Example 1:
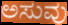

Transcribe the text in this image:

ಅಸುವು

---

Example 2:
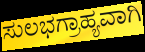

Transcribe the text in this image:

ಸುಲಭಗ್ರಾಹ್ಯವಾಗಿ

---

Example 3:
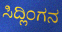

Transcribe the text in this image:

ಸಿದ್ಲಿಂಗನ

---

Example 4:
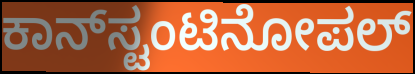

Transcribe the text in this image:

ಕಾನ್‍ಸ್ಟಂಟಿನೋಪಲ್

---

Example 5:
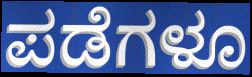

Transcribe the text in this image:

ಪಡೆಗಳೂ